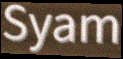
Syam